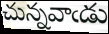
చున్నవాఁడు